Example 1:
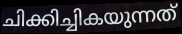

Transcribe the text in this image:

ചിക്കിച്ചികയുന്നത്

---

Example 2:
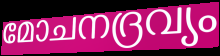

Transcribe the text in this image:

മോചനദ്രവ്യം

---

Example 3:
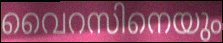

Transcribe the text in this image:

വൈറസിനെയും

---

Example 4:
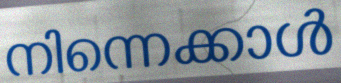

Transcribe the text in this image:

നിന്നെക്കാൾ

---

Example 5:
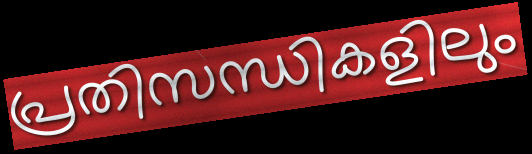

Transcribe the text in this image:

പ്രതിസന്ധികളിലും